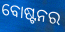
ବୋଷ୍ଟନର